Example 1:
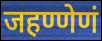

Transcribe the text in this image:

जहण्णेणं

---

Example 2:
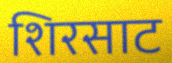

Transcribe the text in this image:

शिरसाट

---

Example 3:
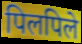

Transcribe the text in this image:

पिलपिले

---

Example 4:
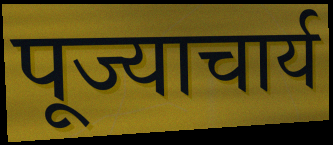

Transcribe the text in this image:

पूज्याचार्य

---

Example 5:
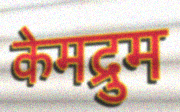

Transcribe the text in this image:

केमद्रुम